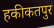
हकीकतपुर